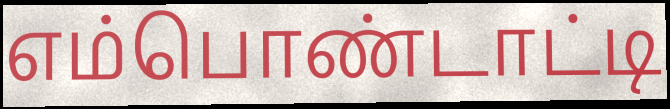
எம்பொண்டாட்டி